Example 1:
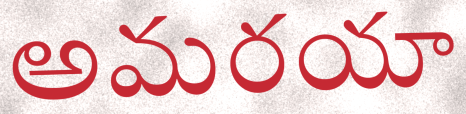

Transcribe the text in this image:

అమరయా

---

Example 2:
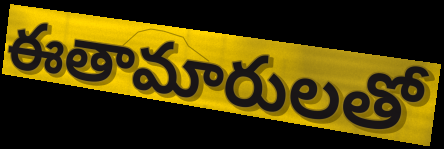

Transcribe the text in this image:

ఈతామారులతో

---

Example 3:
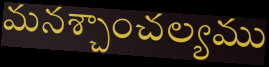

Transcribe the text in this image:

మనశ్చాంచల్యము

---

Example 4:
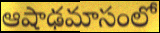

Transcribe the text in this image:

ఆషాఢమాసంలో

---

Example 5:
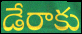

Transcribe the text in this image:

డేరాకు